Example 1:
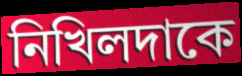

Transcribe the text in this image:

নিখিলদাকে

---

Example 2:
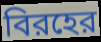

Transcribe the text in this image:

বিরহের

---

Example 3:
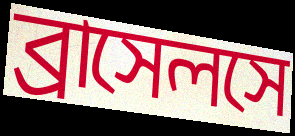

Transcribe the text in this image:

ব্রাসেলসে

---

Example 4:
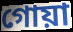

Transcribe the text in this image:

গোয়া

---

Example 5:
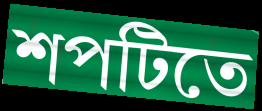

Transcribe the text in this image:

শপটিতে